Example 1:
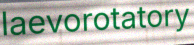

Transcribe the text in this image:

laevorotatory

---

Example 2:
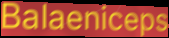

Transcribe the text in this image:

Balaeniceps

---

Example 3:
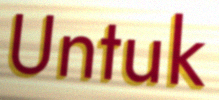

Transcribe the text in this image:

Untuk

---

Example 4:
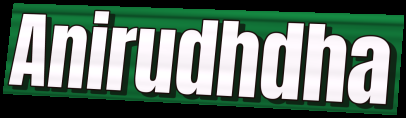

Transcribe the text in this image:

Anirudhdha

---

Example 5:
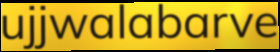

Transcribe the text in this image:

ujjwalabarve